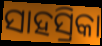
ସାହସ୍ରିକା